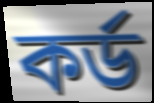
কৰ্ড